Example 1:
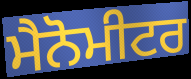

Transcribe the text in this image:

ਮੈਨੋਮੀਟਰ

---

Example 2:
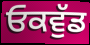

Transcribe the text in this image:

ਓਕਵੁੱਡ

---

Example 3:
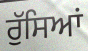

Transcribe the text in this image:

ਰੁੱਸਿਆਂ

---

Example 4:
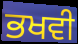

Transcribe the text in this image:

ਭਖਵੀ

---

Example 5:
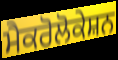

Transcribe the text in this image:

ਮੈਕਰੋਲੋਕੇਸ਼ਨ